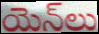
యెన్‌లు